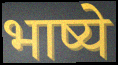
भाष्ये